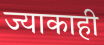
ज्याकाही